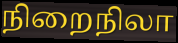
நிறைநிலா